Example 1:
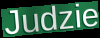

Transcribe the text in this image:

Judzie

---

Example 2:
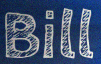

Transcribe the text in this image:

Bill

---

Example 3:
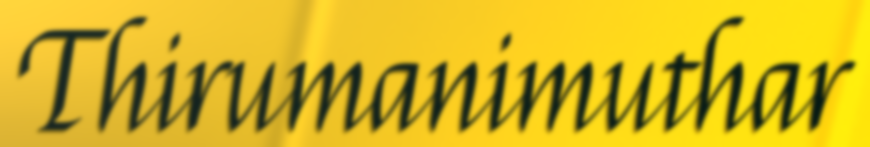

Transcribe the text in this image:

Thirumanimuthar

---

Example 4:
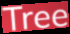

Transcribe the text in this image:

Tree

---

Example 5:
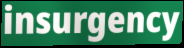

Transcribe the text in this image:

insurgency